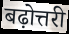
बढ़ोत्तरी